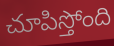
చూపిస్తోంది